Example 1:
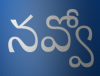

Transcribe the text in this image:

నవ్వో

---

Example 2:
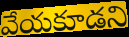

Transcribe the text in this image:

వేయకూడని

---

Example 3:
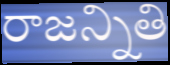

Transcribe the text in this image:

రాజన్నితి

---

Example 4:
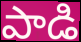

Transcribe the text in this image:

పాడి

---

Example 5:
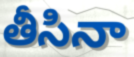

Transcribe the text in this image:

తీసినా